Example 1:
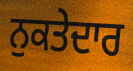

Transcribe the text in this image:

ਨੁਕਤੇਦਾਰ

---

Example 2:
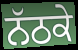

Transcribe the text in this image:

ਨੱਠਕੇ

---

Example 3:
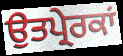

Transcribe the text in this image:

ਉਤਪ੍ਰੇਰਕਾਂ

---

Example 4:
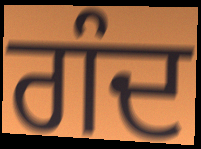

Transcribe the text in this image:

ਗੰਦ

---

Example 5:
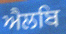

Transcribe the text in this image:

ਐਲਬਿ